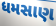
ધમસાણ